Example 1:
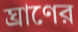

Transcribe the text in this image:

ঘ্রাণের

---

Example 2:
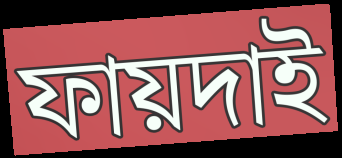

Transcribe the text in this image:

ফায়দাই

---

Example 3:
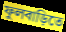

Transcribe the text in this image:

ফুলবাড়িতে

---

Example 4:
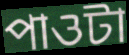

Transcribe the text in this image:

পাওটা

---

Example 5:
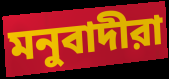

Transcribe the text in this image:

মনুবাদীরা